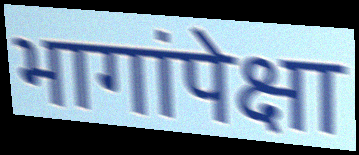
भागांपेक्षा